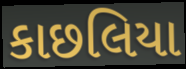
કાછલિયા